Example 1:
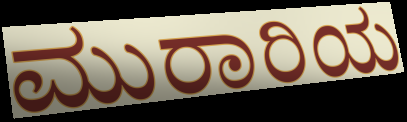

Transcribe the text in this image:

ಮುರಾರಿಯ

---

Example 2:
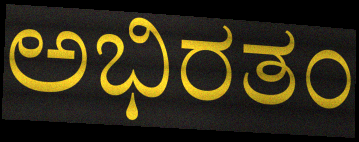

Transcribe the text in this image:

ಅಭಿರತಂ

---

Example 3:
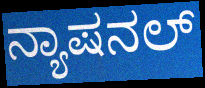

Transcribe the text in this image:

ನ್ಯಾಷನಲ್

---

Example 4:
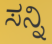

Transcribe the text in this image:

ಸನ್ನಿ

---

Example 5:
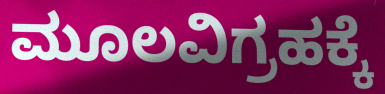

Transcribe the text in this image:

ಮೂಲವಿಗ್ರಹಕ್ಕೆ